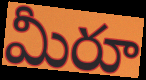
మీరూ